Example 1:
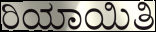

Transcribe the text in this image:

ರಿಯಾಯಿತಿ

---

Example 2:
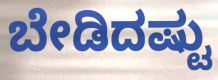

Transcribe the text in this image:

ಬೇಡಿದಷ್ಟು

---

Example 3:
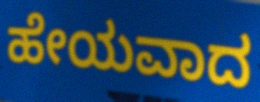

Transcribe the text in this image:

ಹೇಯವಾದ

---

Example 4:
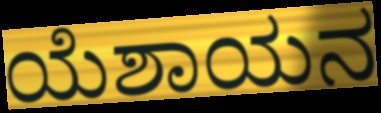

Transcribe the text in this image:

ಯೆಶಾಯನ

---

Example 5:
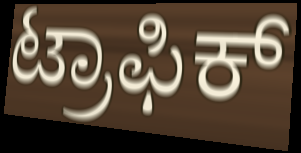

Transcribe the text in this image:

ಟ್ರಾಫಿಕ್